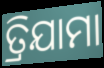
ତ୍ରିଯାମା